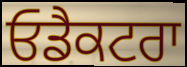
ਓਡੈਕਟਰਾ